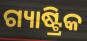
ଗ୍ୟାଷ୍ଟ୍ରିକ